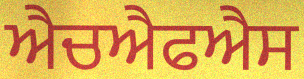
ਐਚਐਫਐਸ